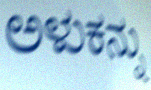
ಅಳುಕನ್ನು